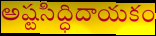
అష్టసిద్ధిదాయకం